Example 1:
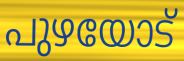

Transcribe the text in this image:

പുഴയോട്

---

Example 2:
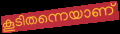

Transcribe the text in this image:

കൂടിതന്നെയാണ്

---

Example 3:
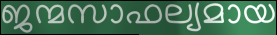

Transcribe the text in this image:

ജന്മസാഫല്യമായ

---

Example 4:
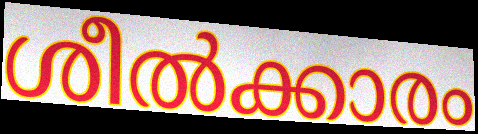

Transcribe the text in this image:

ശീൽക്കാരം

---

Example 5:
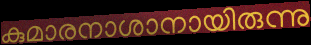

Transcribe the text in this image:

കുമാരനാശാനായിരുന്നു